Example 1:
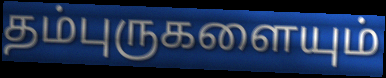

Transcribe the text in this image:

தம்புருகளையும்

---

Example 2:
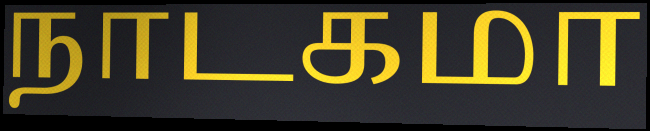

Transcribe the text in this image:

நாடகமா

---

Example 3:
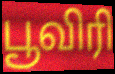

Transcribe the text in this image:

பூவிரி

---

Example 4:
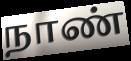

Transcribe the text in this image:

நாண்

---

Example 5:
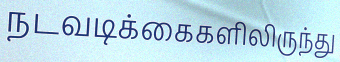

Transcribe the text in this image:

நடவடிக்கைகளிலிருந்து